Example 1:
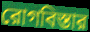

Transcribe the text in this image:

রোগবিস্তার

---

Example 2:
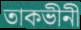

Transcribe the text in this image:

তাকভীনী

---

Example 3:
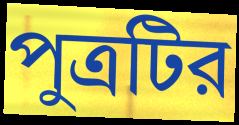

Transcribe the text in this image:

পুত্রটির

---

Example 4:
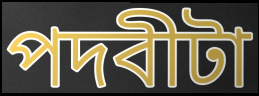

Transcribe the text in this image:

পদবীটা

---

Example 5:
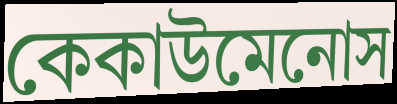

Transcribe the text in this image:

কেকাউমেনোস